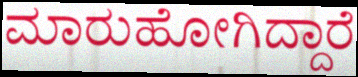
ಮಾರುಹೋಗಿದ್ದಾರೆ